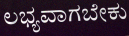
ಲಭ್ಯವಾಗಬೇಕು